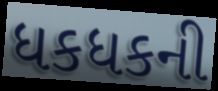
ધકધકની